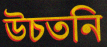
উচতনি